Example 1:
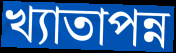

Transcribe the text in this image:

খ্যাতাপন্ন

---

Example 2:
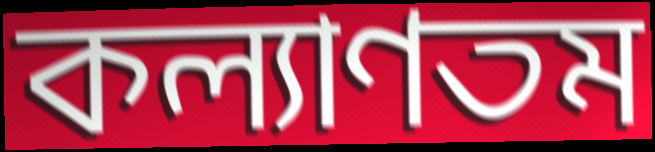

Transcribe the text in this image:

কল্যাণতম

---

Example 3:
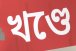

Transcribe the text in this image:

খণ্ডে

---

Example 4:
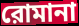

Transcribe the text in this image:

রোমানা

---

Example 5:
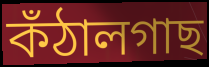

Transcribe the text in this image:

কঁঠালগাছ